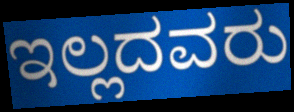
ಇಲ್ಲದವರು